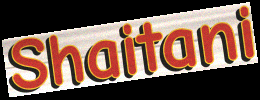
Shaitani